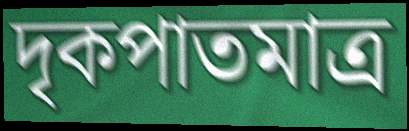
দৃকপাতমাত্র